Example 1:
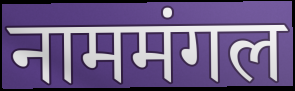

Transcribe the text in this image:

नाममंगल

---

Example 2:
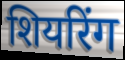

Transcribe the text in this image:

शियरिंग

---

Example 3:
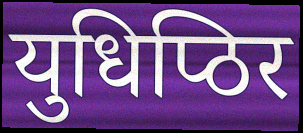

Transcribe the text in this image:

युधिप्ठिर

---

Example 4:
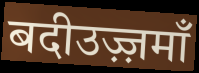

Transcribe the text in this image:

बदीउज़्ज़माँ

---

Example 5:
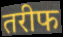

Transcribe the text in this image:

तरीफ